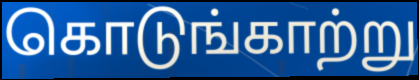
கொடுங்காற்று